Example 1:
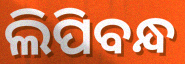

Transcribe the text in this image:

ଲିପିବନ୍ଧ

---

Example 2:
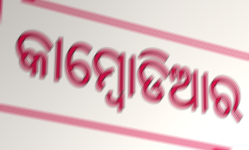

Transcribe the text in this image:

କାମ୍ବୋଡିଆର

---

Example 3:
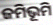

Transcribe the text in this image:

ଜମିଭୂମି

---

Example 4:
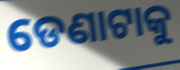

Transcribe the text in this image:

ଡେଣାଟାକୁ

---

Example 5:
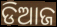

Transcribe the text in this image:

ଡିଆଜ